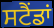
ਸਟੈਂਡਾਂ